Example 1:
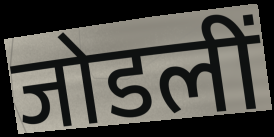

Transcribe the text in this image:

जोडलीं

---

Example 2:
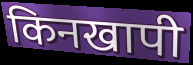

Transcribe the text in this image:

किनखापी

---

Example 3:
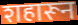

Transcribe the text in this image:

शहारून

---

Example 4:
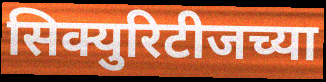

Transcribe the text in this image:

सिक्युरिटीजच्या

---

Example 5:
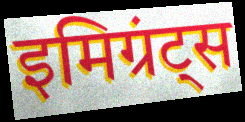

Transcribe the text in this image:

इमिग्रंट्स